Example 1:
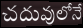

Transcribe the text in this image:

చదువులోనే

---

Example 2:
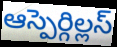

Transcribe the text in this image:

ఆస్పెర్గిల్లస్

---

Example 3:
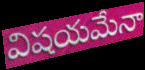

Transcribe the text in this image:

విషయమేనా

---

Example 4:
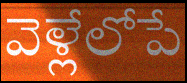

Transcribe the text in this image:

వెళ్లేలోపే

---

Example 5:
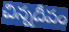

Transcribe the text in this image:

చిన్నదీపం